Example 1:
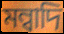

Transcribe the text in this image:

মন্বাদি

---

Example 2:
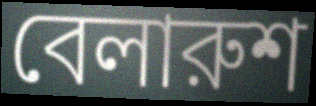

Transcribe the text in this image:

বেলারুশ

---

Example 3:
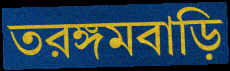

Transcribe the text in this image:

তরঙ্গমবাড়ি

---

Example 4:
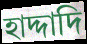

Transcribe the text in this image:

হাদ্দাদি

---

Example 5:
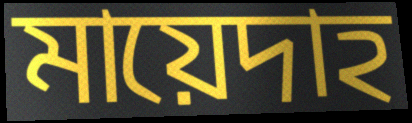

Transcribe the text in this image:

মায়েদাহ